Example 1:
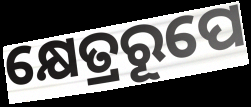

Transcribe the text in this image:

କ୍ଷେତ୍ରରୂପେ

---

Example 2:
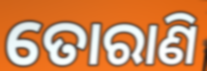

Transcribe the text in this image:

ତୋରାଣି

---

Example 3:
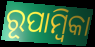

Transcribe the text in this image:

ରୂପାମ୍ବିକା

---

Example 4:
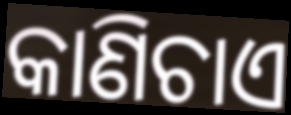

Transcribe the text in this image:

କାଣିଚାଏ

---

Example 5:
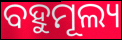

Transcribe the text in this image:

ବହୁମୂଲ୍ୟ